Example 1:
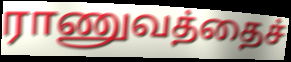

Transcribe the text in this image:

ராணுவத்தைச்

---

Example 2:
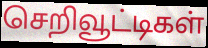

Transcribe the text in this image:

செறிவூட்டிகள்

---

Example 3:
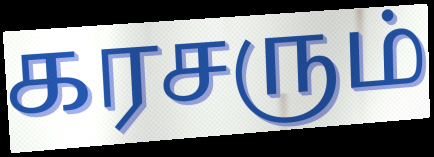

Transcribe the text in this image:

கரசரும்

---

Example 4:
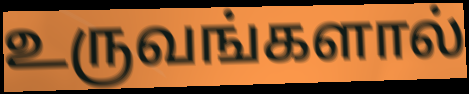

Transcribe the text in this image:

உருவங்களால்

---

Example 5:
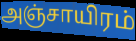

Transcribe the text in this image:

அஞ்சாயிரம்